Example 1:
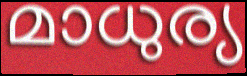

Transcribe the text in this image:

മാധുര്യ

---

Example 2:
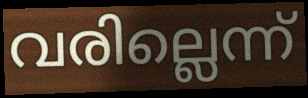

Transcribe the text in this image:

വരില്ലെന്ന്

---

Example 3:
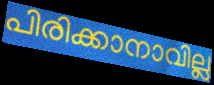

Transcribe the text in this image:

പിരിക്കാനാവില്ല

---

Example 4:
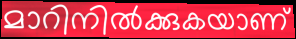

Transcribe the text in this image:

മാറിനിൽക്കുകയാണ്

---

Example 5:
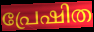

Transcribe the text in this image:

പ്രേഷിത